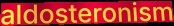
aldosteronism